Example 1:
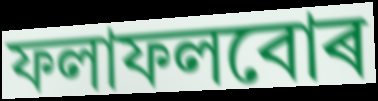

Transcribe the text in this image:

ফলাফলবোৰ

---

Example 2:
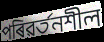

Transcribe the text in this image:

পৰিৱৰ্তনশীল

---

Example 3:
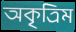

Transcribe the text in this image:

অকৃত্ৰিম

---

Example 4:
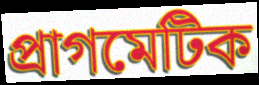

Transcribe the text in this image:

প্ৰাগমেটিক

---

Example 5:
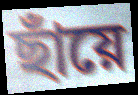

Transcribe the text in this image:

ছাঁয়ে